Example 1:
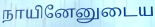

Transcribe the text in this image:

நாயினேனுடைய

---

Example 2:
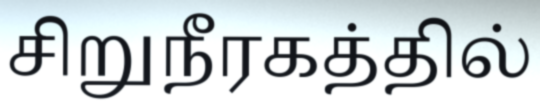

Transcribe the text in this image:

சிறுநீரகத்தில்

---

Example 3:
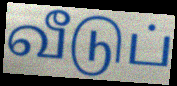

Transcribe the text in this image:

வீடுப்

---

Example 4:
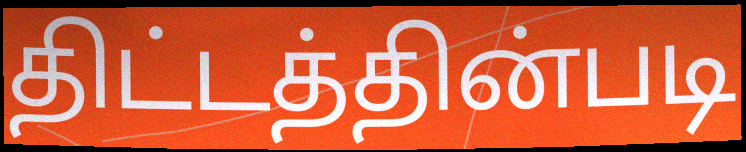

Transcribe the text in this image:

திட்டத்தின்படி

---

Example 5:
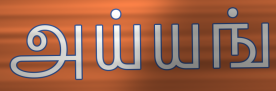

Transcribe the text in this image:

அய்யங்